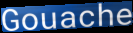
Gouache